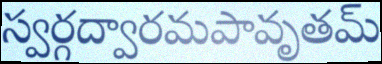
స్వర్గద్వారమపావృతమ్